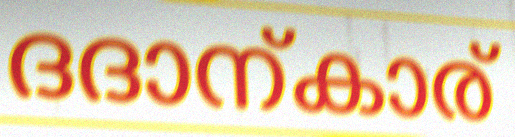
ദദാന്കാര്